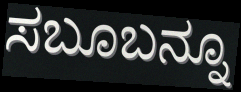
ಸಬೂಬನ್ನೂ